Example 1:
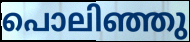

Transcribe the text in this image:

പൊലിഞ്ഞു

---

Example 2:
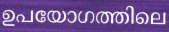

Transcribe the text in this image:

ഉപയോഗത്തിലെ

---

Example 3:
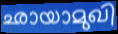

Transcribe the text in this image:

ഛായാമുഖി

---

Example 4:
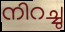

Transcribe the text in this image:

നിറച്ചു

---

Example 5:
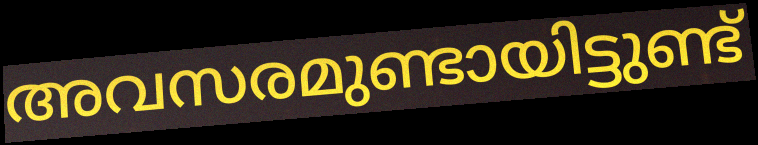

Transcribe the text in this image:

അവസരമുണ്ടായിട്ടുണ്ട്